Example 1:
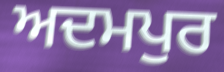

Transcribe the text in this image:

ਅਦਮਪੁਰ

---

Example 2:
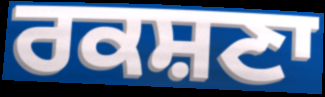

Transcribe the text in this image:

ਰਕਸ਼ਣਾ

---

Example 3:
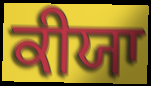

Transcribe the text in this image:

ਕੀਯਾ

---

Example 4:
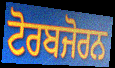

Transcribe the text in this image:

ਟੋਰਬਜੋਰਨ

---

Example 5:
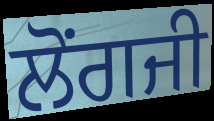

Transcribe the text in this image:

ਲੋਂਗਜੀ